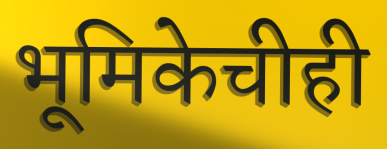
भूमिकेचीही